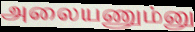
அலையணும்னு